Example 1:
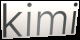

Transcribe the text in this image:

kimi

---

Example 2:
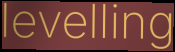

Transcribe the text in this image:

levelling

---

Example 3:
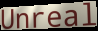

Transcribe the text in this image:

Unreal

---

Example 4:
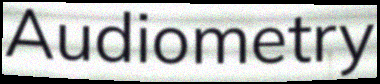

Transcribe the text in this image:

Audiometry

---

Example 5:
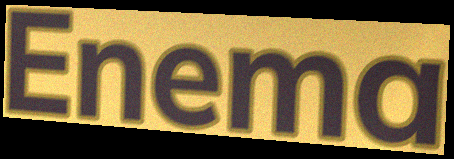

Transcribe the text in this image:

Enema